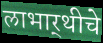
लाभार्थीचे